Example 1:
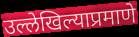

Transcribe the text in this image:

उल्लेखिल्याप्रमाणे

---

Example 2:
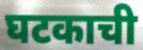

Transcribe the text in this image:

घटकाची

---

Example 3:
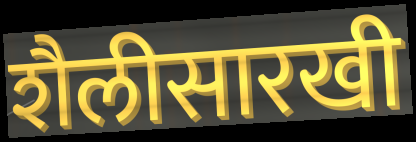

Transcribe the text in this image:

शैलीसारखी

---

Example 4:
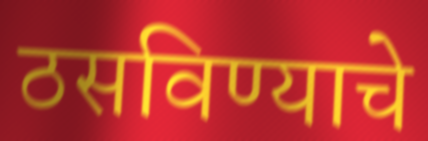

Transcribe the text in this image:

ठसविण्याचे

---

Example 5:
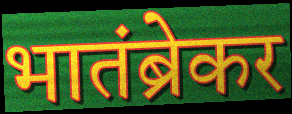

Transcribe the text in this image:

भातंब्रेकर